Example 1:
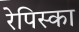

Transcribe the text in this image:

रेपिस्का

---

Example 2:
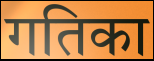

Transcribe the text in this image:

गतिका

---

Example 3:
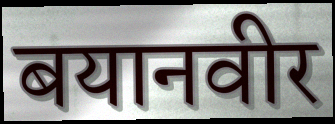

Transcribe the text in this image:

बयानवीर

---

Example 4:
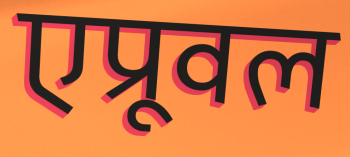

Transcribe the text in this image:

एप्रूवल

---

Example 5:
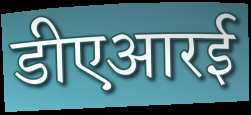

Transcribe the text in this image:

डीएआरई